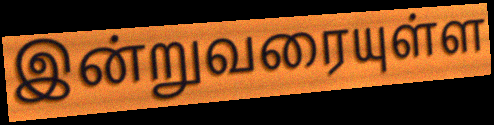
இன்றுவரையுள்ள